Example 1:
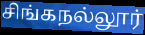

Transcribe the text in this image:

சிங்கநல்லூர்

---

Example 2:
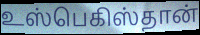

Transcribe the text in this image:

உஸ்பெகிஸ்தான்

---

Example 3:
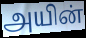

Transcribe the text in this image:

அயின்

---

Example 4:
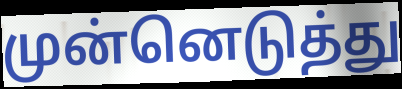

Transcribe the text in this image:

முன்னெடுத்து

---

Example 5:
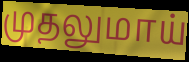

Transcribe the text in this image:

முதலுமாய்